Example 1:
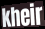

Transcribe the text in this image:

kheir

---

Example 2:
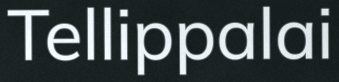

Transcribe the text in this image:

Tellippalai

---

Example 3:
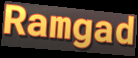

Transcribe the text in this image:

Ramgad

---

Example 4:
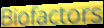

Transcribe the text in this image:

Biofactors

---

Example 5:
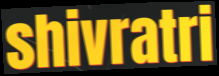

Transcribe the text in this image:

shivratri